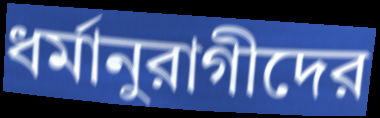
ধর্মানুরাগীদের